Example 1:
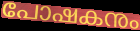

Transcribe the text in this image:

പോഷകനും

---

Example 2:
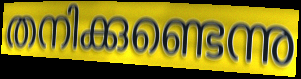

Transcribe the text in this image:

തനിക്കുണ്ടെന്നു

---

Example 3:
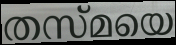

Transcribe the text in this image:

തസ്മയെ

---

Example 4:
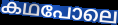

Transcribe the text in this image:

കഥപോലെ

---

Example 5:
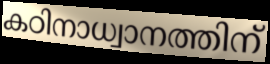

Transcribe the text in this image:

കഠിനാധ്വാനത്തിന്